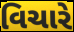
વિચારે